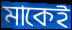
মাকেই